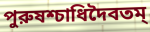
পুরুষশ্চাধিদৈবতম্